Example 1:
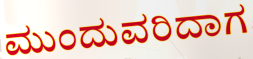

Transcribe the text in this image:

ಮುಂದುವರಿದಾಗ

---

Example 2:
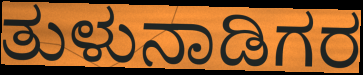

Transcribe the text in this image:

ತುಳುನಾಡಿಗರ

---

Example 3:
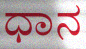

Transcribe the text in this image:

ಧಾನ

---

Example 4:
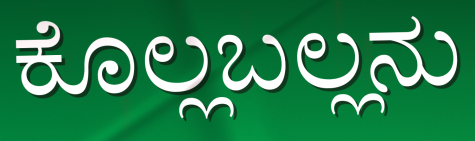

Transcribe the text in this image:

ಕೊಲ್ಲಬಲ್ಲನು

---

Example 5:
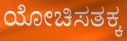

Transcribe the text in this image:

ಯೋಚಿಸತಕ್ಕ